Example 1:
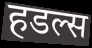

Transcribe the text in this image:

हडल्स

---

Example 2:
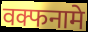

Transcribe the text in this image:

वक्फनामे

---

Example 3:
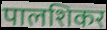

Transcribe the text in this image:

पालशिकर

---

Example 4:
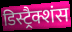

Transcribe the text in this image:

डिस्ट्रैक्शंस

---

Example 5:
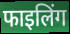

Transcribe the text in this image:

फाइलिंग